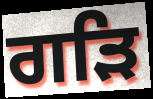
ਗੜਿ